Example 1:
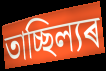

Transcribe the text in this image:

তাচ্ছিল্যৰ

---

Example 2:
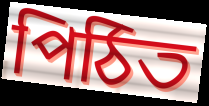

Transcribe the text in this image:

পিঠিত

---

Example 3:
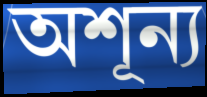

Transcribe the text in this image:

অশূন্য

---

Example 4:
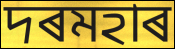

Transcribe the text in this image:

দৰমহাৰ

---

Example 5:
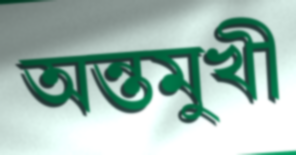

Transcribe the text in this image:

অন্তমুখী